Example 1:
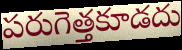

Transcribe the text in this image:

పరుగెత్తకూడదు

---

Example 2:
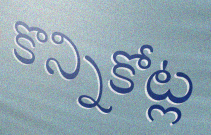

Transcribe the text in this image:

కొన్నికోట్ల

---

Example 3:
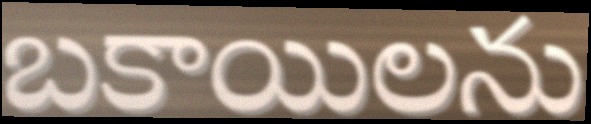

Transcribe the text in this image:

బకాయిలను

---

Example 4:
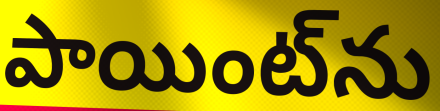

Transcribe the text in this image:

పాయింట్‌ను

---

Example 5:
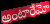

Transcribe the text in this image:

అంటారేమో